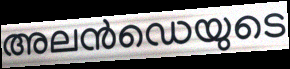
അലൻഡെയുടെ